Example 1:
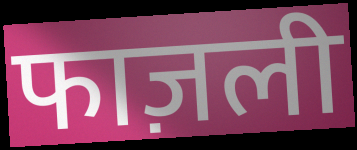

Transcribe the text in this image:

फाज़ली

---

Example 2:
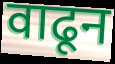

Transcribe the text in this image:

वाढून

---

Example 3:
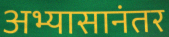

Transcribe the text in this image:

अभ्यासानंतर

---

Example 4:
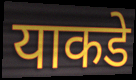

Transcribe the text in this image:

याकडे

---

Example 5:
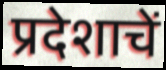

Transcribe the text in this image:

प्रदेशाचें